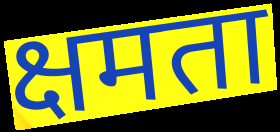
क्षमता